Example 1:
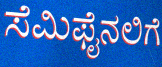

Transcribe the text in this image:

ಸೆಮಿಫೈನಲಿಗೆ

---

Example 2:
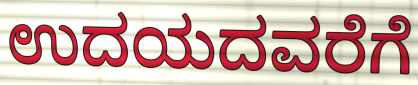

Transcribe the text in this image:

ಉದಯದವರೆಗೆ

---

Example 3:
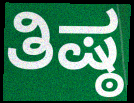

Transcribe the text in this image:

ತಿಷ್ಠ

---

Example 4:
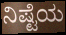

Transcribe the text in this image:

ನಿಷ್ಟೆಯ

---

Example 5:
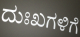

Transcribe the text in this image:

ದುಃಖಗಳಿಗೆ